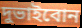
দুভাইবোন